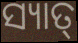
ସ୍ୟାତ୍